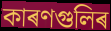
কাৰণগুলিৰ